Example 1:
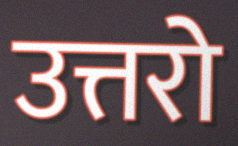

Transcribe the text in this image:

उत्तरो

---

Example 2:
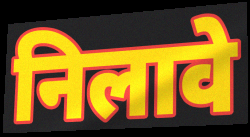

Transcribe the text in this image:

निलावे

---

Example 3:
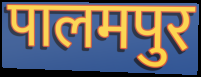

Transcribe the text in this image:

पालमपुर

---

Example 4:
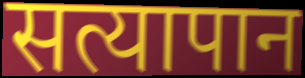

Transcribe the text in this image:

सत्यापान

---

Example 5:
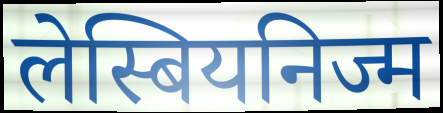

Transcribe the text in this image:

लेस्बियनिज्म